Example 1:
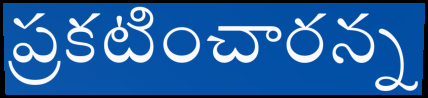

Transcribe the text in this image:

ప్రకటించారన్న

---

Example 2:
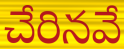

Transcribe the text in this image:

చేరినవే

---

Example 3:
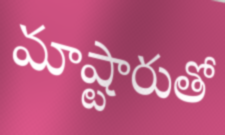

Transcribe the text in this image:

మాష్టారుతో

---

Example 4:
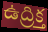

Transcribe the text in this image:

ఉద్రిక్త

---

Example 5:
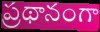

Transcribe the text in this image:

ప్రథానంగా